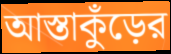
আস্তাকুঁড়ের